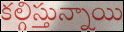
కల్గిస్తున్నాయి